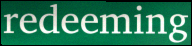
redeeming